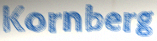
Kornberg